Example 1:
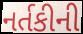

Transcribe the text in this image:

નર્તકીની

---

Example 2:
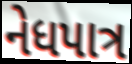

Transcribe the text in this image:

નેધપાત્ર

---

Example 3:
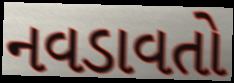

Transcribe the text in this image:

નવડાવતો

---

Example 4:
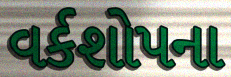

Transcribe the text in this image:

વર્કશોપના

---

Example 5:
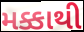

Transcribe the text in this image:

મક્કાથી